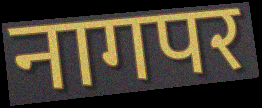
नागपर